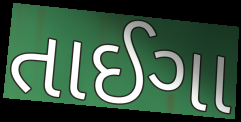
તાઈગા